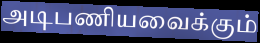
அடிபணியவைக்கும்